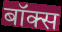
बॉक्‍स